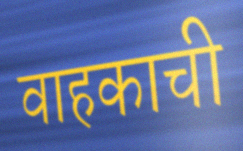
वाहकाची